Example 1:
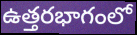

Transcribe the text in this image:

ఉత్తరభాగంలో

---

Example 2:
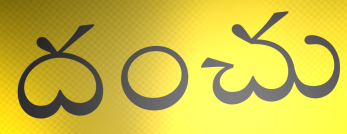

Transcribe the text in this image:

దంచు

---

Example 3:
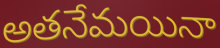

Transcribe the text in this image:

అతనేమయినా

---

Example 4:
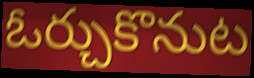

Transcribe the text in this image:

ఓర్చుకొనుట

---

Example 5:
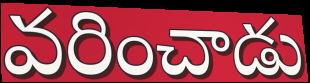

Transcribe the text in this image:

వరించాడు